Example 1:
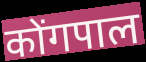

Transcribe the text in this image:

कोंगपाल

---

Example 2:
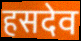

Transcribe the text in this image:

हसदेव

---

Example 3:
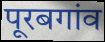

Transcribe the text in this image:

पूरबगांव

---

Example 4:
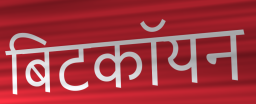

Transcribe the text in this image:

बिटकॉयन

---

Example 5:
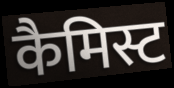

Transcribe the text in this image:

कैमिस्ट